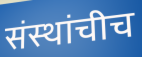
संस्थांचीच